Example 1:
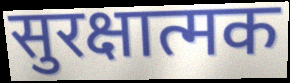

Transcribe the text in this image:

सुरक्षात्मक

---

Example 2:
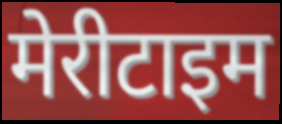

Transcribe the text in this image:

मेरीटाइम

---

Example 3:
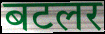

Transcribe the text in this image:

बटलर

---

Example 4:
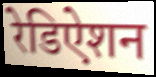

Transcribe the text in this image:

रेडिऐशन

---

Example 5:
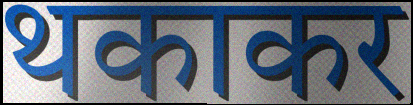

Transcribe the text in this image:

थकाकर